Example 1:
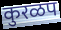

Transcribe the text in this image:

कुरळप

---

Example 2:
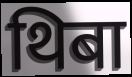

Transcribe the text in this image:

थिबा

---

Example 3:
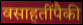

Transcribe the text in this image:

वसाहतींपैकी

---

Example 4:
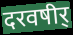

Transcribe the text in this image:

दरवषीर्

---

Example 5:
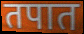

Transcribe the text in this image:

तपात